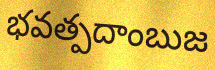
భవత్పదాంబుజ